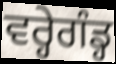
ਵਰ੍ਹੇਗੰਡ੍ਹ